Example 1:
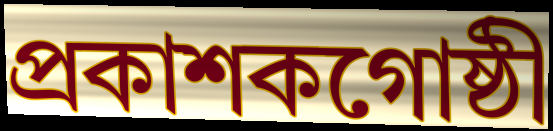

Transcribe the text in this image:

প্রকাশকগোষ্ঠী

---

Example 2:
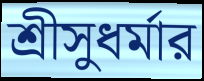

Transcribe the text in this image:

শ্রীসুধর্মার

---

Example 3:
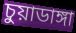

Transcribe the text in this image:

চুয়াডাঙ্গা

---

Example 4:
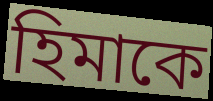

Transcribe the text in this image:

হিমাকে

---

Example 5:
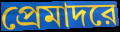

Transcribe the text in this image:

প্রেমাদরে